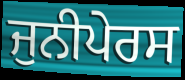
ਜੁਨੀਪੇਰਸ